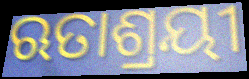
ଋତାଶ୍ରୟୀ